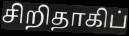
சிறிதாகிப்